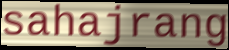
sahajrang